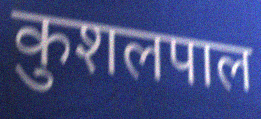
कुशलपाल